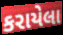
કરાયેલા